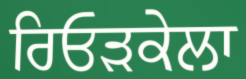
ਰਿਓੜਕੇਲਾ